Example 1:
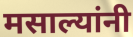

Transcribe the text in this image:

मसाल्यांनी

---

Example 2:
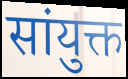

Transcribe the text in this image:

सांयुक्त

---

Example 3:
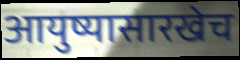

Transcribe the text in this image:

आयुष्यासारखेच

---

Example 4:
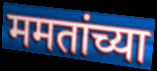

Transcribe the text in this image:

ममतांच्या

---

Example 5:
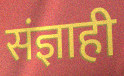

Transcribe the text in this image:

संज्ञाही